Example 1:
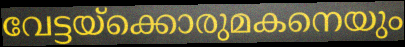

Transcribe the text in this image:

വേട്ടയ്ക്കൊരുമകനെയും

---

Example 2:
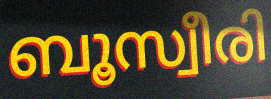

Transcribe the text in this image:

ബൂസ്വീരി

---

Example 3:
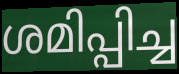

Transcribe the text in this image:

ശമിപ്പിച്ച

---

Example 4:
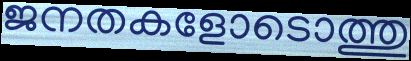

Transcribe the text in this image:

ജനതകളോടൊത്തു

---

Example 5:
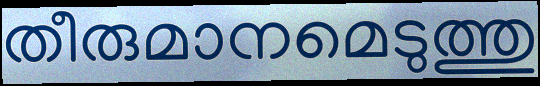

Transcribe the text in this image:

തീരുമാനമെടുത്തു